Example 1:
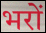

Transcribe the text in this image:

भरों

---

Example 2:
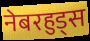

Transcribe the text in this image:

नेबरहुड्स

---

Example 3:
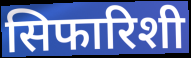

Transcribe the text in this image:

सिफारिशी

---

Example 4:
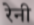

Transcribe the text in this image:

रेनी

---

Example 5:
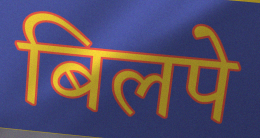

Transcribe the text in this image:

बिलपे